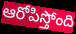
ఆరోపిస్తోంది